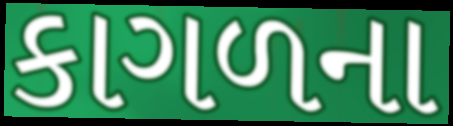
કાગળના